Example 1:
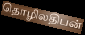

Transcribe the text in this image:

தொழிலதிபன்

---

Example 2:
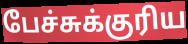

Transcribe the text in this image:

பேச்சுக்குரிய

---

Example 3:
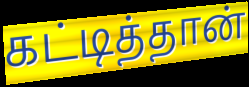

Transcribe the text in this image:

கட்டித்தான்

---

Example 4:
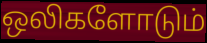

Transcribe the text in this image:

ஒலிகளோடும்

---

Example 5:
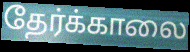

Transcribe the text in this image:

தேர்க்காலை